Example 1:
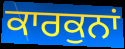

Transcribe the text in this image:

ਕਾਰਕੁਨਾਂ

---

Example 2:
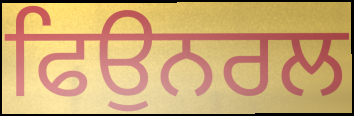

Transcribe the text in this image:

ਫਿਉਨਰਲ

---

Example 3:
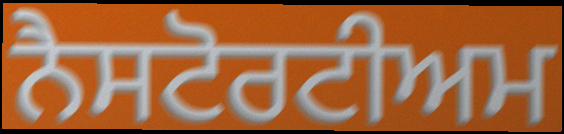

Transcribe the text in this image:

ਨੈਸਟੋਰਟੀਅਮ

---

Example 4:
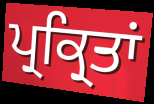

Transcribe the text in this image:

ਪ੍ਰਕ੍ਰਿਤਾਂ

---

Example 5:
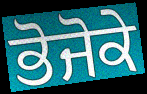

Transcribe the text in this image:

ਭੋਜੋਕੇ